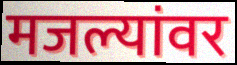
मजल्यांवर